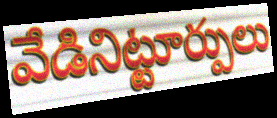
వేడినిట్టూర్పులు